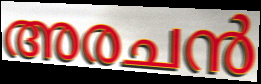
അരചൻ